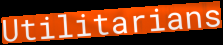
Utilitarians